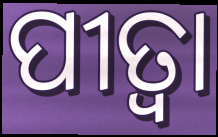
ପୀତ୍ବା